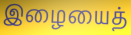
இழையைத்